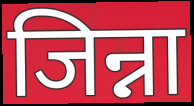
जिन्ना